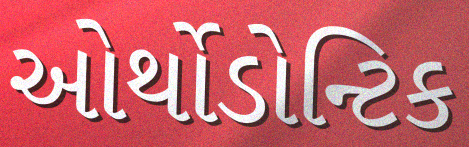
ઓર્થોડોન્ટિક